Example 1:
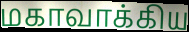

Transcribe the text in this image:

மகாவாக்கிய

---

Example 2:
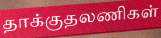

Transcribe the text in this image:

தாக்குதலணிகள்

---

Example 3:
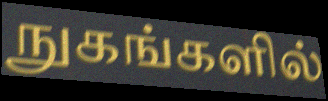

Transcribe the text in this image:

நுகங்களில்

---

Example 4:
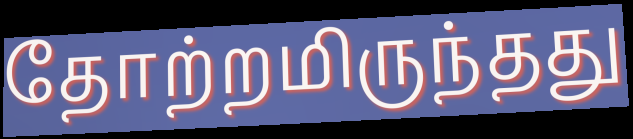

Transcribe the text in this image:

தோற்றமிருந்தது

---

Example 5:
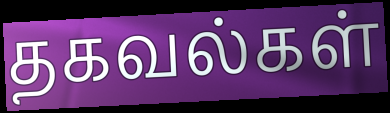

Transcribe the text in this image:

தகவல்கள்